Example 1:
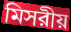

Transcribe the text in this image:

মিসরীয়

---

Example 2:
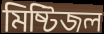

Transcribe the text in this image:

মিষ্টিজল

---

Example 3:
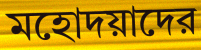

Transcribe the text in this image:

মহোদয়াদের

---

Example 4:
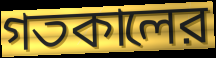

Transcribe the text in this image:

গতকালের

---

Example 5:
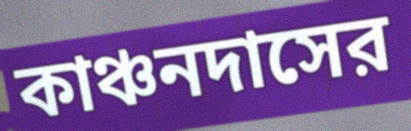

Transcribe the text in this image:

কাঞ্চনদাসের